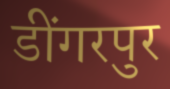
डींगरपुर